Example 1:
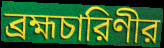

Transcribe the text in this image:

ব্রহ্মচারিণীর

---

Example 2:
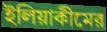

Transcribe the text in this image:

ইলিয়াকীমের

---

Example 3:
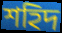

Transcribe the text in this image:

শহিদ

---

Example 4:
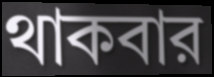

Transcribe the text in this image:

থাকবার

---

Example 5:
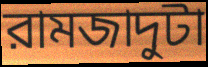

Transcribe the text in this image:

রামজাদুটা